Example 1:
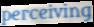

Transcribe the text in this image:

perceiving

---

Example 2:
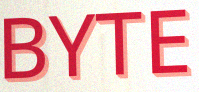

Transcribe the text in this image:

BYTE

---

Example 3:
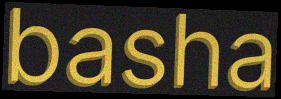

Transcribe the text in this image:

basha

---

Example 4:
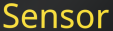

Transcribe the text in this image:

Sensor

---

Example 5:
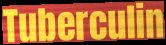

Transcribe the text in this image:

Tuberculin